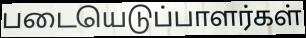
படையெடுப்பாளர்கள்